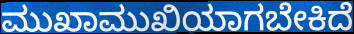
ಮುಖಾಮುಖಿಯಾಗಬೇಕಿದೆ